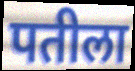
पतीला